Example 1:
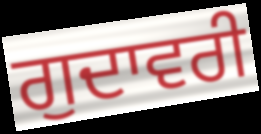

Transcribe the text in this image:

ਗੁਦਾਵਰੀ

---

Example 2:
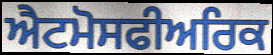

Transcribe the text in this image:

ਐਟਮੋਸਫੀਅਰਿਕ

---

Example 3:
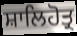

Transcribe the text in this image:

ਸ਼ਾਲਿਹੋਤ੍ਰ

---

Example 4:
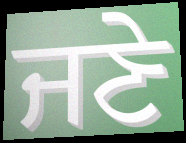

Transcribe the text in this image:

ਜਣੇ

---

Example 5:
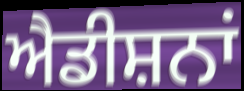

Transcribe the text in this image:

ਐਡੀਸ਼ਨਾਂ